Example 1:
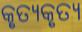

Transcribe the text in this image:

କୃତ୍ଯକୃତ୍ଯ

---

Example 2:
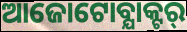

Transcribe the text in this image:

ଆଜୋଟୋବ୍ଯାକ୍ଟର୍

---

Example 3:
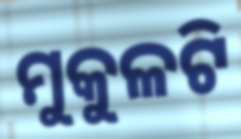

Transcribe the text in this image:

ମୁକୁଳଟି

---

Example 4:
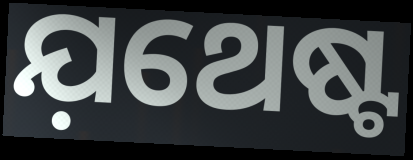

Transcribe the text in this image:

ଯ଼ଥେଷ୍ଟ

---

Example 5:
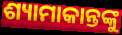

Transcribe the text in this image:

ଶ୍ୟାମାକାନ୍ତଙ୍କୁ